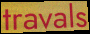
travals